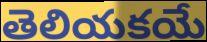
తెలియకయే